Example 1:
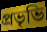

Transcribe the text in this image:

প্রভৃভি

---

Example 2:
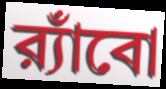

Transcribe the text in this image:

র‍্যাঁবো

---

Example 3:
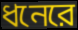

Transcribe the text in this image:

ধনেরে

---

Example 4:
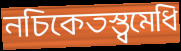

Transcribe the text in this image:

নচিকেতস্ত্বমেধি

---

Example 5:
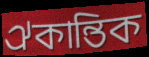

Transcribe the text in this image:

ঐকান্তিক